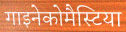
गाइनेकोमैस्टिया